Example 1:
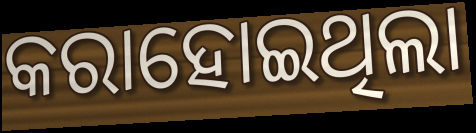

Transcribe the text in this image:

କରାହୋଇଥିଲା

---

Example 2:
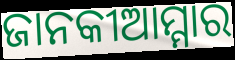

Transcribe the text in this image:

ଜାନକୀଆମ୍ମାର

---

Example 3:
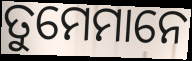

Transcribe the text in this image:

ତୁମେମାନେ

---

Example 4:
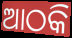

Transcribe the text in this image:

ଆଠକି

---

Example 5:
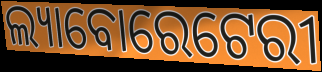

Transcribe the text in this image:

ଲ୍ୟାବୋରେଟେରୀ